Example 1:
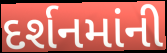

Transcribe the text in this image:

દર્શનમાંની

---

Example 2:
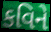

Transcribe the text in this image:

કવિને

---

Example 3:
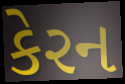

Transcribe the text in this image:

કેરન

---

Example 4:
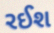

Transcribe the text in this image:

રઈશ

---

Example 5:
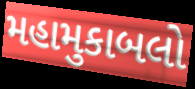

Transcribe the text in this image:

મહામુકાબલો